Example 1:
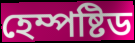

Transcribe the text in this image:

হেম্পষ্টিড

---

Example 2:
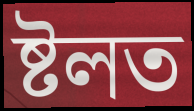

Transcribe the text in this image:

ষ্টলত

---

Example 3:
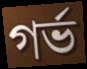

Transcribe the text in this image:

গৰ্ভ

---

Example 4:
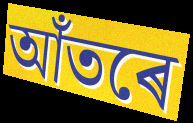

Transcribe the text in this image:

আঁতৰে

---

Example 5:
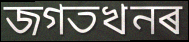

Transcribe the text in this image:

জগতখনৰ